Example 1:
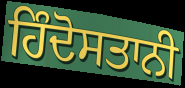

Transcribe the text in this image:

ਹਿੰਦੋਸਤਾਨੀ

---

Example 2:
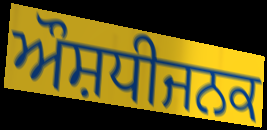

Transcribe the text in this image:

ਔਸ਼ਧੀਜਨਕ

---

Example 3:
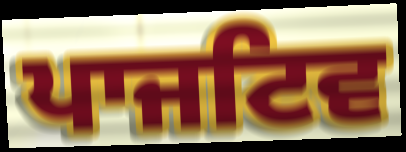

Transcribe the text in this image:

ਪਾਜਟਿਵ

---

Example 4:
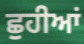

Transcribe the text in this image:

ਛੁਹੀਆਂ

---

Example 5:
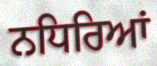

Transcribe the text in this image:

ਨਧਿਰਿਆਂ